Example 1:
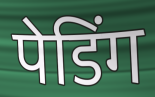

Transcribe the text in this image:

पेडिंग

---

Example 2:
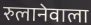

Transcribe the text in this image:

रुलानेवाला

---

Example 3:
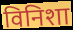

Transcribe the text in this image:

विनिशा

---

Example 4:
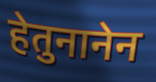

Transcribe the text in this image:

हेतुनानेन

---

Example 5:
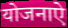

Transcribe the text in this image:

योजनाऐ